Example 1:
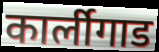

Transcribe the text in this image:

कार्लीगाड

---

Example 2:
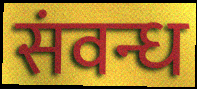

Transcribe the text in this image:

संवन्ध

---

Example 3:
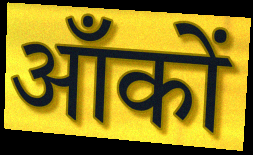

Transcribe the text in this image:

आँकों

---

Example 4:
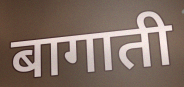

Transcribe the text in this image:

बागाती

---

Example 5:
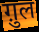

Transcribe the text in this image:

ग़ुल